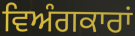
ਵਿਅੰਗਕਾਰਾਂ